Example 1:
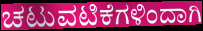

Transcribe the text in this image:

ಚಟುವಟಿಕೆಗಳಿಂದಾಗಿ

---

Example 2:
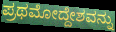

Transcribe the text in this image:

ಪ್ರಥಮೋದ್ದೇಶವನ್ನು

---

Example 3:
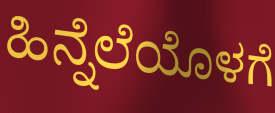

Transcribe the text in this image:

ಹಿನ್ನೆಲೆಯೊಳಗೆ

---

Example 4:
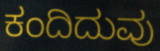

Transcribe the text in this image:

ಕಂದಿದುವು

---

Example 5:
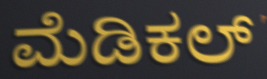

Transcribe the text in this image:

ಮೆಡಿಕಲ್